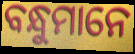
ବନ୍ଧୁମାନେ